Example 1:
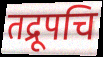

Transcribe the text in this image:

तद्रूपचि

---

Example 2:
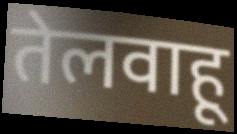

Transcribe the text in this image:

तेलवाहू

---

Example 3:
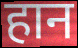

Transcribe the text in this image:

हान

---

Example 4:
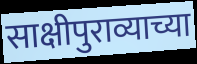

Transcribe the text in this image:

साक्षीपुराव्याच्या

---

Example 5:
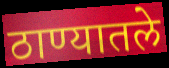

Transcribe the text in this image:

ठाण्यातले